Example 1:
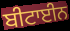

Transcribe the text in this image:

ਬੀਟਾਈਨ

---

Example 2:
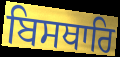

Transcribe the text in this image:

ਬਿਸਥਾਰਿ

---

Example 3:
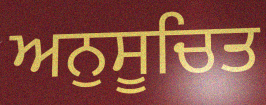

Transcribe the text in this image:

ਅਨੁਸੂਚਿਤ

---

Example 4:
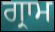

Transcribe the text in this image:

ਗ੍ਰਾਮ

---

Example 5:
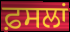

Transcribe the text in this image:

ਫ਼ਸਲਾਂ